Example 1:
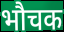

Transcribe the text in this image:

भौचक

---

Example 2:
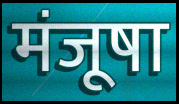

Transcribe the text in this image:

मंजूषा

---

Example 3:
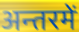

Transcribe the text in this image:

अन्तरमें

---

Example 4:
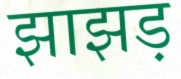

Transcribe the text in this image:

झाझड़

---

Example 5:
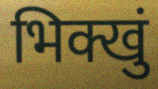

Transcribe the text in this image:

भिक्खुं